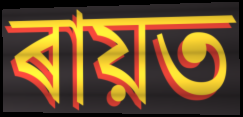
ৰায়ত